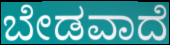
ಬೇಡವಾದೆ